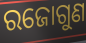
ରଜୋଗୁଣ